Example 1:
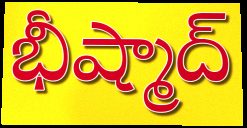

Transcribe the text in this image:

భీష్మాద్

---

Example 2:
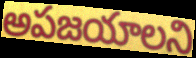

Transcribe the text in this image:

అపజయాలని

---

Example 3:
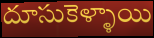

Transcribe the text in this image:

దూసుకెళ్ళాయి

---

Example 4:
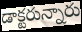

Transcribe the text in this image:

డాక్టరున్నారు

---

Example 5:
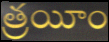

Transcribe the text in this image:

త్రయీం